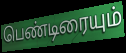
பெண்டிரையும்